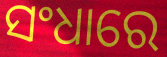
ସଂଧାରେ